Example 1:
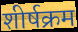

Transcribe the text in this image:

शीर्षक्रम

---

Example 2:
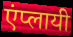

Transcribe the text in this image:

एंप्लायी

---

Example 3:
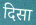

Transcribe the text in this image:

दिसा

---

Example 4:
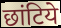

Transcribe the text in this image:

छांटिये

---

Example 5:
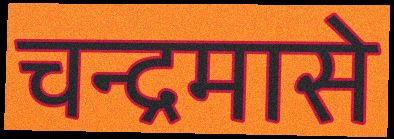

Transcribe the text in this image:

चन्द्रमासे